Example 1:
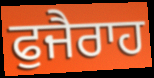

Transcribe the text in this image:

ਫੁਜੈਰਾਹ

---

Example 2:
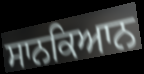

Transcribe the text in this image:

ਸਾਨਕਿਆਨ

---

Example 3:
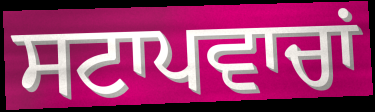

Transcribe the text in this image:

ਸਟਾਪਵਾਚਾਂ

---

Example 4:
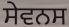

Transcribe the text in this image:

ਸੇਵਨਸ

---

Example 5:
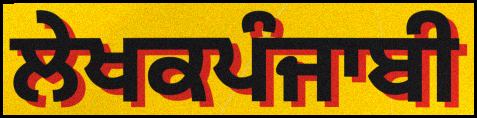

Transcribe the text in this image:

ਲੇਖਕਪੰਜਾਬੀ